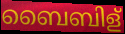
ബൈബിള്